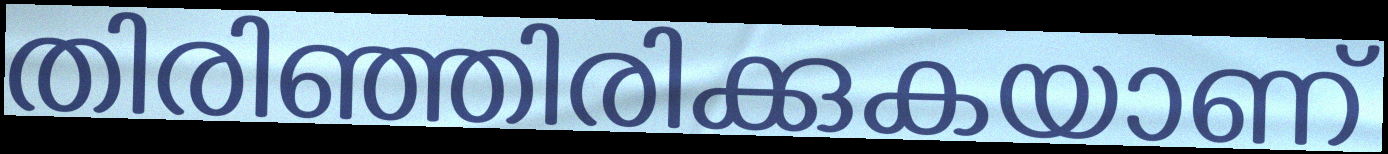
തിരിഞ്ഞിരിക്കുകയാണ്